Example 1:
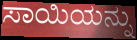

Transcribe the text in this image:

ಸಾಯಿಯನ್ನು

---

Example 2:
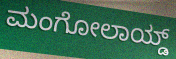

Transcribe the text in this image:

ಮಂಗೋಲಾಯ್ಡ್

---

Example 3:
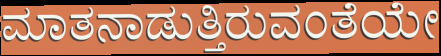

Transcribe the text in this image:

ಮಾತನಾಡುತ್ತಿರುವಂತೆಯೇ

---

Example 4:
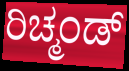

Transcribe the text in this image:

ರಿಚ್ಮಂಡ್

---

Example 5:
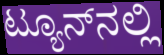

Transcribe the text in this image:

ಟ್ಯೂನ್‌ನಲ್ಲಿ